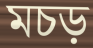
মচড়